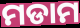
ମଡାମ